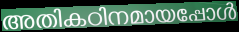
അതികഠിനമായപ്പോൾ